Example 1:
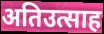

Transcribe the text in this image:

अतिउत्साह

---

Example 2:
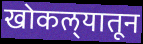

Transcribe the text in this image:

खोकल्यातून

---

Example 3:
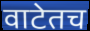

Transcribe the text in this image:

वाटेतच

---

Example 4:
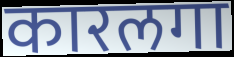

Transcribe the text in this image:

कारलगा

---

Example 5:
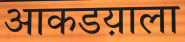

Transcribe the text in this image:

आकडय़ाला